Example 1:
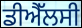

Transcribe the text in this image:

ਡੀਐੱਲਸੀ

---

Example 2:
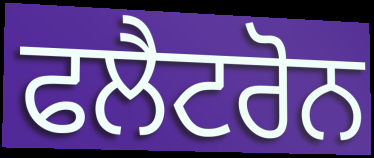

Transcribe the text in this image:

ਫਲੈਟਰੋਨ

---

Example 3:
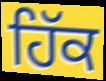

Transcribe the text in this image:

ਹਿੱਕ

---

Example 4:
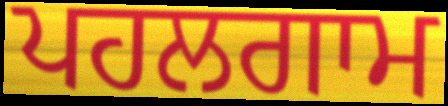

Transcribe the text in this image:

ਪਹਲਗਾਮ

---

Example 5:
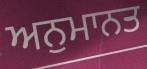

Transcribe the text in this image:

ਅਨੁਮਾਨਤ